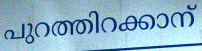
പുറത്തിറക്കാന്